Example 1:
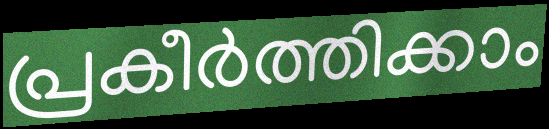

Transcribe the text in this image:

പ്രകീർത്തിക്കാം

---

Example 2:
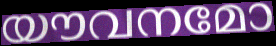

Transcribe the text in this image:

യൗവനമോ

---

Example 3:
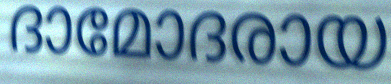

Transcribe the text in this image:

ദാമോദരായ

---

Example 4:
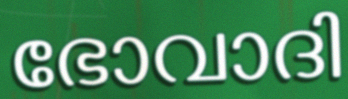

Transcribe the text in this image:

ഭോവാദി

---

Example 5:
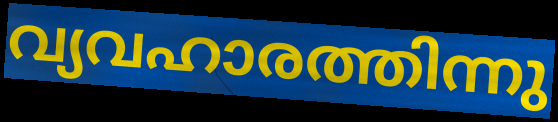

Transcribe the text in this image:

വ്യവഹാരത്തിന്നു